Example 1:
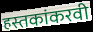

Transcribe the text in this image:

हस्तकांकरवी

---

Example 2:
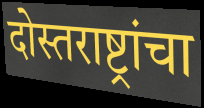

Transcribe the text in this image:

दोस्तराष्ट्रांचा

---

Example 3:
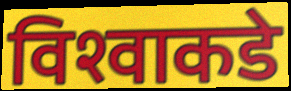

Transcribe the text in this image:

विश्वाकडे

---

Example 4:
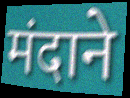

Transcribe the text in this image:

मंदाने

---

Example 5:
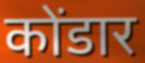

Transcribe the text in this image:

कोंडार